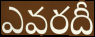
ఎవరదీ